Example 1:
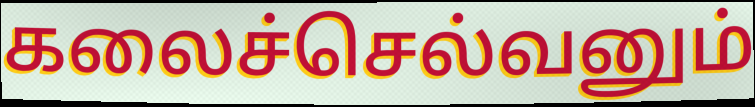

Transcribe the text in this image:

கலைச்செல்வனும்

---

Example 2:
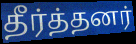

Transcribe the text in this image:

தீர்த்தனர்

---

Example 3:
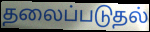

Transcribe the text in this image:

தலைப்படுதல்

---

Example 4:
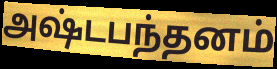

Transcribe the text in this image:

அஷ்டபந்தனம்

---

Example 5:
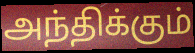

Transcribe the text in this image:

அந்திக்கும்